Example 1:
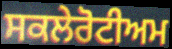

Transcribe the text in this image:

ਸਕਲੇਰੋਟੀਅਮ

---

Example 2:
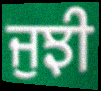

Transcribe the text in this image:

ਜੁਝੀ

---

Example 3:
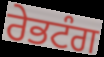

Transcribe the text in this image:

ਰੇਭਟੰਗ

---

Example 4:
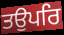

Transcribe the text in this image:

ਤਉਪਰਿ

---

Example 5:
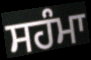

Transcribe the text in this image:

ਸਹੰਮਾ